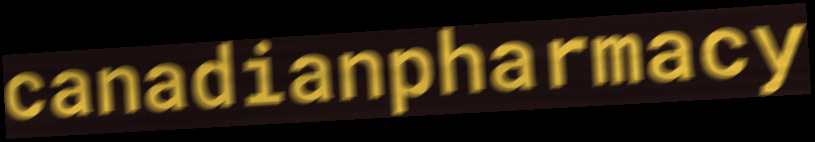
canadianpharmacy